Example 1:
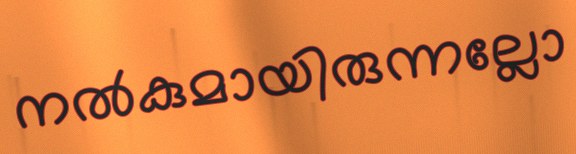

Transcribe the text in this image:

നൽകുമായിരുന്നല്ലോ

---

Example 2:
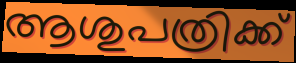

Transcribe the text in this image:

ആശുപത്രിക്ക്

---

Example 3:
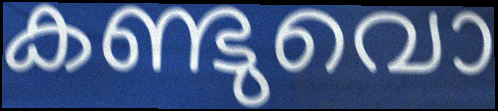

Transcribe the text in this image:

കണ്ടുവൊ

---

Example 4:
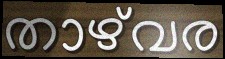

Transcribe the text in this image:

താഴ്‌വര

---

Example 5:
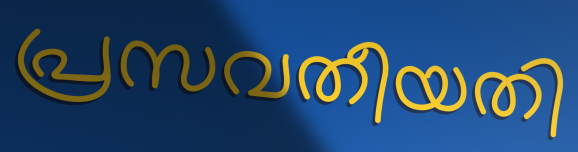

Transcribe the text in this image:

പ്രസവതീയതി